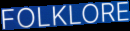
FOLKLORE